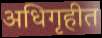
अधिगृहीत